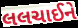
લલચાઈને